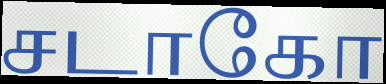
சடாகோ